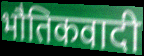
भौतिकवादी